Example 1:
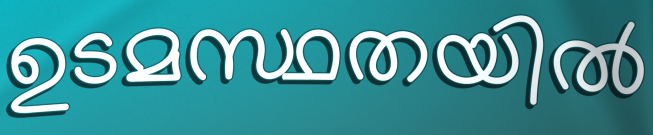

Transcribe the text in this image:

ഉടമസ്ഥതയിൽ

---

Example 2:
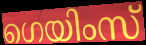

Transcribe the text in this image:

ഗെയിംസ്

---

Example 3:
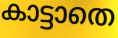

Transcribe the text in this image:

കാട്ടാതെ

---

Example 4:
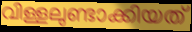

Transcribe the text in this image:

വിള്ളലുണ്ടാക്കിയത്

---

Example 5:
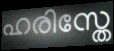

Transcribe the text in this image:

ഹരിസ്തേ